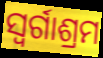
ସ୍ୱର୍ଗାଶ୍ରମ